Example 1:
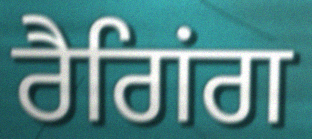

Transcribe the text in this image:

ਰੈਗਿਂਗ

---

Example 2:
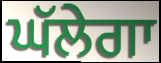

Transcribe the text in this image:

ਘੱਲੇਗਾ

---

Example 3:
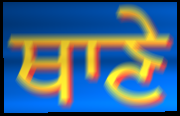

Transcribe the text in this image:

ਥਾਣੇ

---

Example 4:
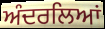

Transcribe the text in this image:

ਅੰਦਰਲਿਆਂ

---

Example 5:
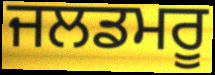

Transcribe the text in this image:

ਜਲਡਮਰੂ